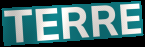
TERRE